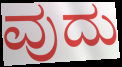
ವುದು